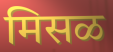
मिसळ